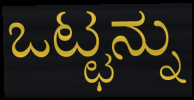
ಒಟ್ಟನ್ನು